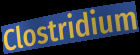
Clostridium